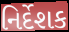
નિર્દેશક